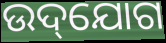
ଉଦ୍‌ଯୋଗ